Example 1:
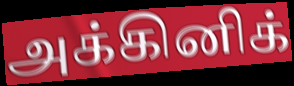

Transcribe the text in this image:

அக்கினிக்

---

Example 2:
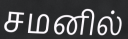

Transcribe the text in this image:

சமனில்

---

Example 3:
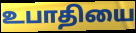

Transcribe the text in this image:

உபாதியை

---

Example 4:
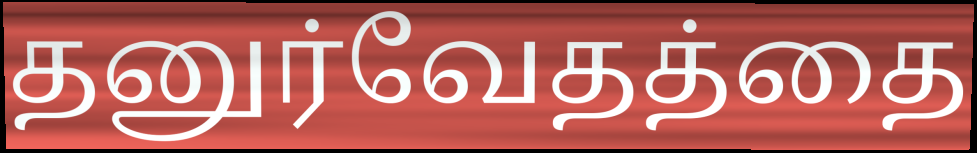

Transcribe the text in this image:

தனுர்வேதத்தை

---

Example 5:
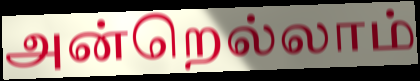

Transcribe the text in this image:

அன்றெல்லாம்